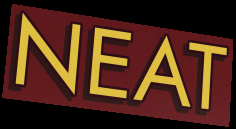
NEAT